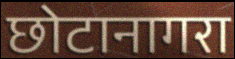
छोटानागरा